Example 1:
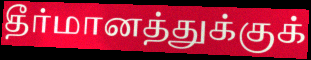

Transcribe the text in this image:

தீர்மானத்துக்குக்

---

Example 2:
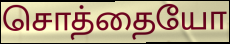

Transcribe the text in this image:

சொத்தையோ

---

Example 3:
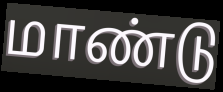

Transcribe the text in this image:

மாண்டு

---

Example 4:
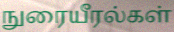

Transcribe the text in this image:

நுரையீரல்கள்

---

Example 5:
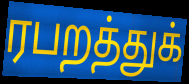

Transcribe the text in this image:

ரபறத்துக்